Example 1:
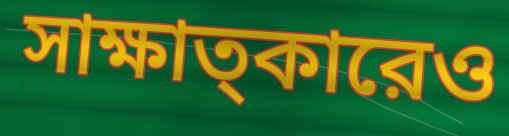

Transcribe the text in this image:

সাক্ষাত্কারেও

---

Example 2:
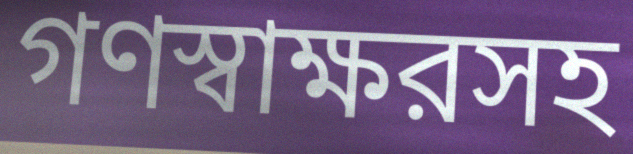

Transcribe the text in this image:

গণস্বাক্ষরসহ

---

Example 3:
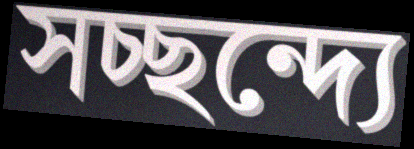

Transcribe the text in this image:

সচ্ছন্দ্যে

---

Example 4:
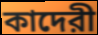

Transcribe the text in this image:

কাদেরী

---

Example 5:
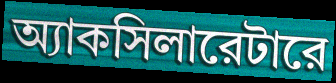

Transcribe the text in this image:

অ্যাকসিলারেটারে